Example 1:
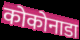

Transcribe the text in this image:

कोकोनाडा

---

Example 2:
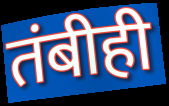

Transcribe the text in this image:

तंबीही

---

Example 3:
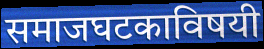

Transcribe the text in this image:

समाजघटकाविषयी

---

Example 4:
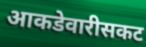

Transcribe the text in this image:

आकडेवारीसकट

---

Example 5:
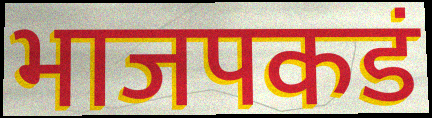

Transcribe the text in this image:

भाजपकडं